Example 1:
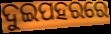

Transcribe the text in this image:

ଦୁଇପହରରେ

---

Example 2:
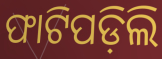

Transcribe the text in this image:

ଫାଟିପଡ଼ିଲି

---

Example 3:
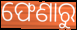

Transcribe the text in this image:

ଫେଣାରୁ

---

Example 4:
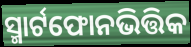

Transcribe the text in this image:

ସ୍ମାର୍ଟଫୋନଭିତ୍ତିକ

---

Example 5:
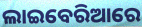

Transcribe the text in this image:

ଲାଇବେରିଆରେ